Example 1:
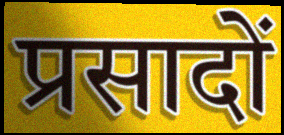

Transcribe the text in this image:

प्रसादों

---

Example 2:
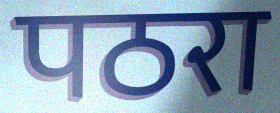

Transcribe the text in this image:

पठरा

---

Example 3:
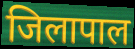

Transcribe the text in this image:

जिलापाल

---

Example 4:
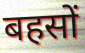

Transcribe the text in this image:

बहसों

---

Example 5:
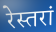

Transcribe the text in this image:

रेस्तरां